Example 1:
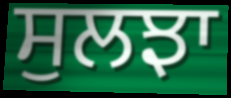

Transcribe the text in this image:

ਸੁਲਝਾ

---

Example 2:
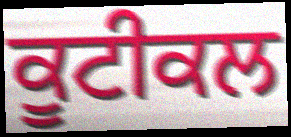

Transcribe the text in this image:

ਕੂਟੀਕਲ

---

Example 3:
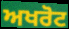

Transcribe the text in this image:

ਅਖਰੋਟ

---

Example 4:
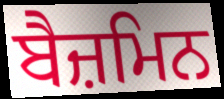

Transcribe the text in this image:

ਬੈਜ਼ਮਿਨ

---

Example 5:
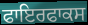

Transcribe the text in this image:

ਫਾਇਰਫਾਕਸ